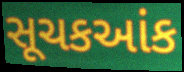
સૂચકઆંક